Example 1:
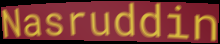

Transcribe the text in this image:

Nasruddin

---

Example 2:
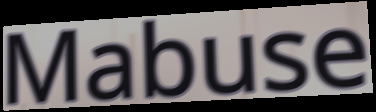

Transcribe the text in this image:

Mabuse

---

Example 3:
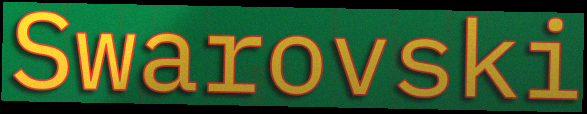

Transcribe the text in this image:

Swarovski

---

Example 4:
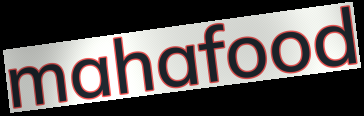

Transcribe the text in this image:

mahafood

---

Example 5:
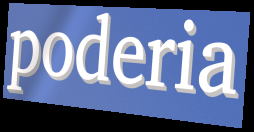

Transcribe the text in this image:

poderia